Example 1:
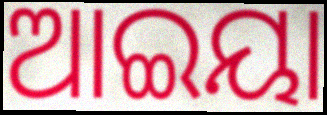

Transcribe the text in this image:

ଆଇୟା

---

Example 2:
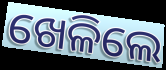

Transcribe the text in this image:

ଖେଳିଲେ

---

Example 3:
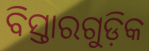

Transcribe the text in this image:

ବିସ୍ତାରଗୁଡ଼ିକ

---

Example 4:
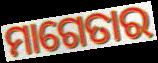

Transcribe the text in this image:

ମାଗେତାର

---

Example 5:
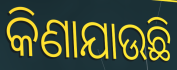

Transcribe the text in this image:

କିଣାଯାଉଛି